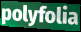
polyfolia